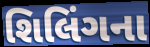
શિલિંગના